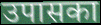
उपासका